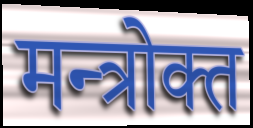
मन्त्रोक्त